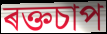
ৰক্তচাপ